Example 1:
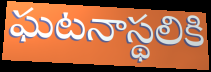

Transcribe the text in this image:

ఘటనాస్థలికి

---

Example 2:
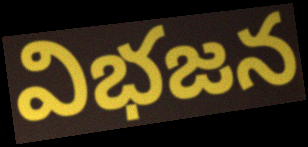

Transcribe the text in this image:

విభజన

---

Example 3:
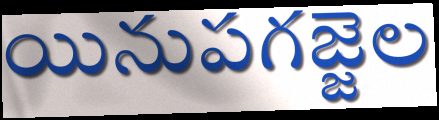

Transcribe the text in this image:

యినుపగజ్జెల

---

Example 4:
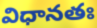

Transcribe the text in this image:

విధానతః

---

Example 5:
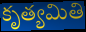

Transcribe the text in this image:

కృత్యమితి